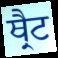
ਥ੍ਰੈਟ